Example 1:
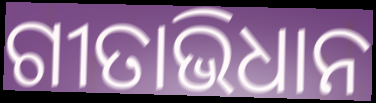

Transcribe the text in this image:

ଗୀତାଭିଧାନ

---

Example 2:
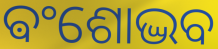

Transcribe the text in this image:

ଵଂଶୋଦ୍ଭବ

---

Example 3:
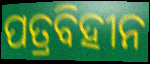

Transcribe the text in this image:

ପତ୍ରବିହୀନ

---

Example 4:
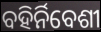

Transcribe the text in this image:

ବହିର୍ନିବେଶୀ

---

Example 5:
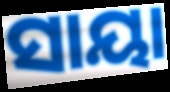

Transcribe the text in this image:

ସାୟା